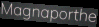
Magnaporthe